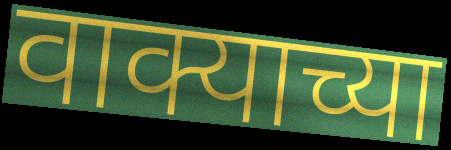
वाक्याच्या